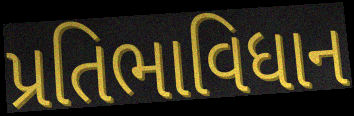
પ્રતિભાવિધાન